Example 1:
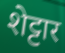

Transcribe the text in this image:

शेट्टार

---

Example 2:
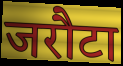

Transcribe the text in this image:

जरौटा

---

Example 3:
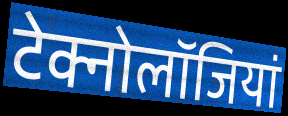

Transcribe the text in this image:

टेक्नोलॉजियां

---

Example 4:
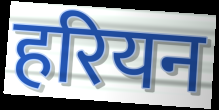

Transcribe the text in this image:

हरियन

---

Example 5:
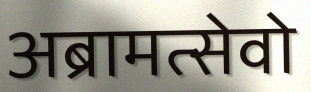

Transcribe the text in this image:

अब्रामत्सेवो